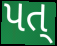
પત્